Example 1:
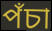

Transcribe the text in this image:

পঁচা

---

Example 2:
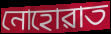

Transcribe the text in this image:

নোহোৱাত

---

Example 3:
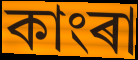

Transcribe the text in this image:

কাংৰা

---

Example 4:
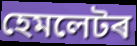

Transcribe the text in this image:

হেমলেটৰ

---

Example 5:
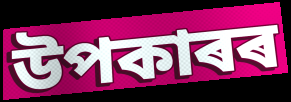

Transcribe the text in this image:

উপকাৰৰ